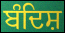
ਬੰਦਿਸ਼